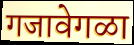
गजावेगळा